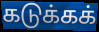
கடுக்கக்